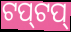
ଟପ୍‌ଟପ୍